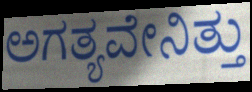
ಅಗತ್ಯವೇನಿತ್ತು